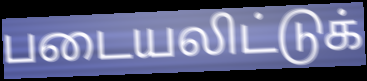
படையலிட்டுக்